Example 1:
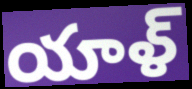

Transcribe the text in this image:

యాళ్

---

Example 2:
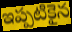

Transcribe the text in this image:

ఇప్పటికైన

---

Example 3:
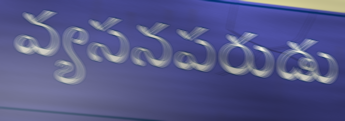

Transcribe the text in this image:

వ్యసనపరుడు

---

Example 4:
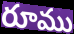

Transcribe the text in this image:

రూము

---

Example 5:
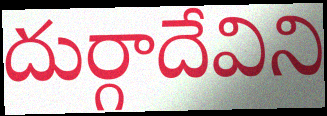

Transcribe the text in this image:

దుర్గాదేవిని